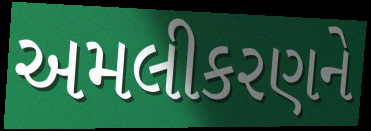
અમલીકરણને